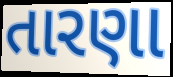
તારણા